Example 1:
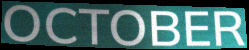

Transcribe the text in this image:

OCTOBER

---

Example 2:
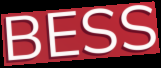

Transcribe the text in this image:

BESS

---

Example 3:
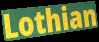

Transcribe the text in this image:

Lothian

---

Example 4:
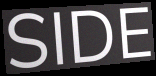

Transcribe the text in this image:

SIDE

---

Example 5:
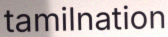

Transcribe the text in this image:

tamilnation